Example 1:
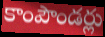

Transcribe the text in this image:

కాంపౌండర్లు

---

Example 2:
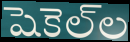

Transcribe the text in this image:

షెకెల్‌ల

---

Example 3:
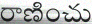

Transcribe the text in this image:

రాణించు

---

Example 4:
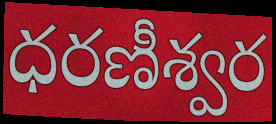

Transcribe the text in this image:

ధరణీశ్వర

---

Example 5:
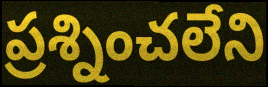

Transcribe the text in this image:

ప్రశ్నించలేని